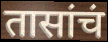
तासांचं